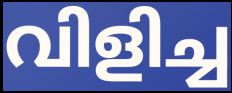
വിളിച്ച